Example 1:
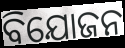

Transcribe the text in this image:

ବିଯୋଜନ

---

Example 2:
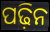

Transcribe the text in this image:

ପଢ଼ିନ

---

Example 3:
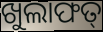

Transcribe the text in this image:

ଖୁଲାଫତ୍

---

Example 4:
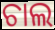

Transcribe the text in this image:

ଚାଲ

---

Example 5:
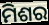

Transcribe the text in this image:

ମିଶର